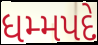
ધમ્મપદે